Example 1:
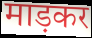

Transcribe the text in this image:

माड़कर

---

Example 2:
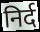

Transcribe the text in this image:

निर्द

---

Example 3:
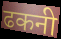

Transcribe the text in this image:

ढकनी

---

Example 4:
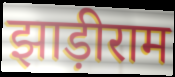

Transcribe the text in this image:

झाड़ीराम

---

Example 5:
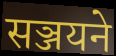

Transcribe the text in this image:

सञ्जयने